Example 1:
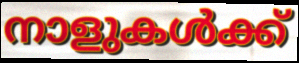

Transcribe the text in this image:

നാളുകൾക്ക്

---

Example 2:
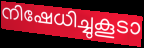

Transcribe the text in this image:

നിഷേധിച്ചുകൂടാ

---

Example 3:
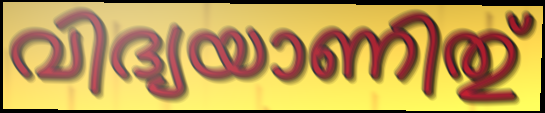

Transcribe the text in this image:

വിദ്യയാണിതു്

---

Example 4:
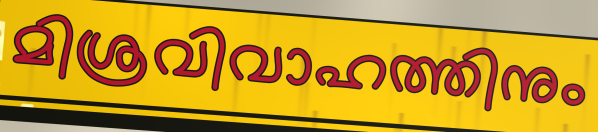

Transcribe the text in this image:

മിശ്രവിവാഹത്തിനും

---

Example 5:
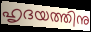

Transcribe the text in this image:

ഹൃദയത്തിനു